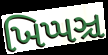
ખિપ્પઞ્ચ